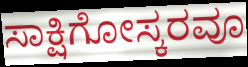
ಸಾಕ್ಷಿಗೋಸ್ಕರವೂ